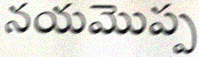
నయమొప్ప